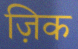
ज़िक